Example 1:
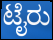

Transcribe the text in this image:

ಟೈರು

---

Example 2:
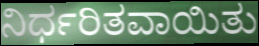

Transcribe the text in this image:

ನಿರ್ಧರಿತವಾಯಿತು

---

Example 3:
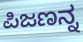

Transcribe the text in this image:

ಪಿಜಣನ್ನ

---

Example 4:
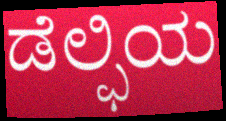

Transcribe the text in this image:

ಡೆಲ್ಫಿಯ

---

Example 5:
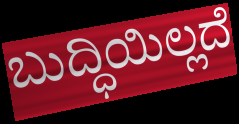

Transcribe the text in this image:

ಬುದ್ಧಿಯಿಲ್ಲದೆ